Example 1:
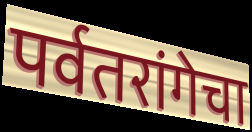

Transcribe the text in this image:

पर्वतरांगेचा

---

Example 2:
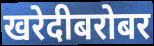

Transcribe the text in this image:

खरेदीबरोबर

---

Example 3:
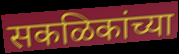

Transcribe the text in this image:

सकळिकांच्या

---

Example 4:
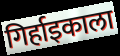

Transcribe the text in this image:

गिर्हाइकाला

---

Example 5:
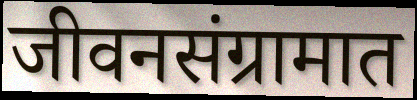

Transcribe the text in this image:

जीवनसंग्रामात